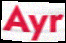
Ayr